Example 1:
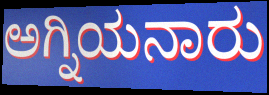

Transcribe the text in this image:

ಅಗ್ನಿಯನಾರು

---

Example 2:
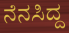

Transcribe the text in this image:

ನೆನಸಿದ್ದ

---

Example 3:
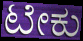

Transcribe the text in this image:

ಟೇಕು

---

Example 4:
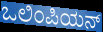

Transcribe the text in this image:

ಒಲಿಂಪಿಯನ್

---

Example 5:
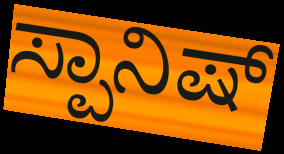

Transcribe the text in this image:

ಸ್ಪಾನಿಷ್